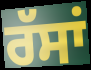
ਰੱਸਾਂ